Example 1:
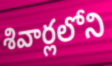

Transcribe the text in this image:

శివార్లలోని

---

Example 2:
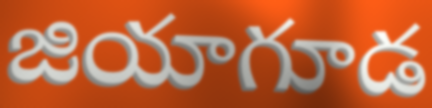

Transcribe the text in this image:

జియాగూడ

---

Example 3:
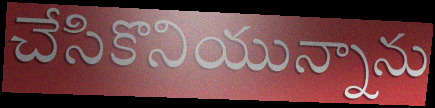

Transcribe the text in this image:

చేసికొనియున్నాను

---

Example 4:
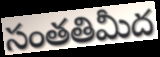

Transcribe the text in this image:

సంతతిమీద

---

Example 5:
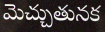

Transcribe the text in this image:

మెచ్చుతునక